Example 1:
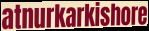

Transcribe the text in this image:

atnurkarkishore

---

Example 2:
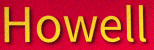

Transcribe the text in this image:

Howell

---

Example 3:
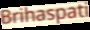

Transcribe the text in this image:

Brihaspati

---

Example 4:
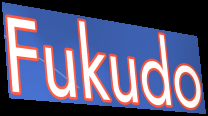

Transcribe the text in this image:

Fukudo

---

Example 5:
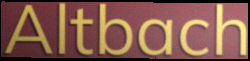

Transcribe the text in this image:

Altbach